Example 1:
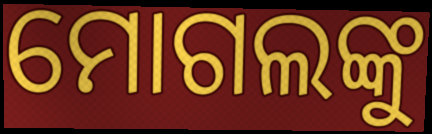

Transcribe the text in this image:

ମୋଗଲଙ୍କୁ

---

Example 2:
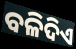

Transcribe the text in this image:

ବଳିଦିଏ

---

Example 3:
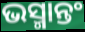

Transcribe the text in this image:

ଭସ୍ମାନ୍ତଂ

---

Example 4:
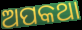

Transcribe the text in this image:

ଅପକଥା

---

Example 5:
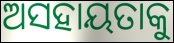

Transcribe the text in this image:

ଅସହାୟତାକୁ